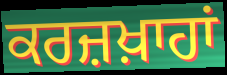
ਕਰਜ਼ਖ਼ਾਹਾਂ